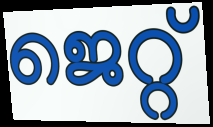
ജെറ്റ്